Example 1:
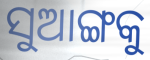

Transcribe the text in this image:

ସୁଆଙ୍ଗକୁ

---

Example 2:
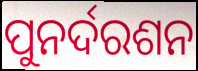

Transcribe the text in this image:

ପୁନର୍ଦରଶନ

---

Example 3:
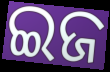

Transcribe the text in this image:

ଇଜ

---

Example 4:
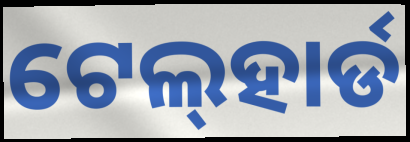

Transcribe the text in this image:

ଟେଲ୍‍ହାର୍ଡ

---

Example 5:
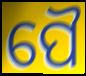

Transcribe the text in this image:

ପୈ